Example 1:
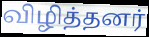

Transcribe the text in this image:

விழித்தனர்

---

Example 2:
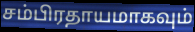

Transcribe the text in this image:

சம்பிரதாயமாகவும்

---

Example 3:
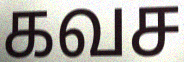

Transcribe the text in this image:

கவச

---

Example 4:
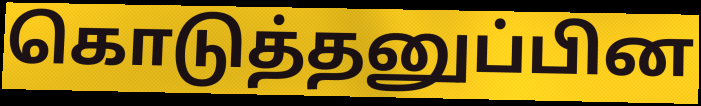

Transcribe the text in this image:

கொடுத்தனுப்பின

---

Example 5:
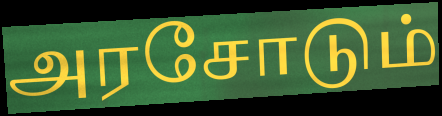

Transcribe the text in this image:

அரசோடும்